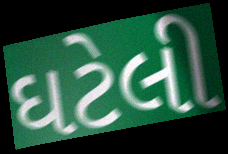
ઘટેલી